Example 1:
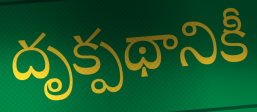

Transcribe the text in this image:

దృక్పథానికీ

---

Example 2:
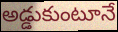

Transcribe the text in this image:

అడ్డుకుంటూనే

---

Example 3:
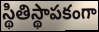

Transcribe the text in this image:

స్థితిస్థాపకంగా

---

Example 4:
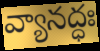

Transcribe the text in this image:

వ్యానద్ధః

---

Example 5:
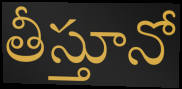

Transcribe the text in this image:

తీస్తూనో